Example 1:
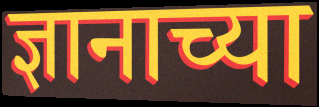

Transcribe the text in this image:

ज्ञानाच्या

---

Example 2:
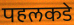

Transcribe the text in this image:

पहलकडे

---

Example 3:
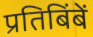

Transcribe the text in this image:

प्रतिबिंबें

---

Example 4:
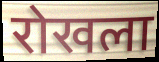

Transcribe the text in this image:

रोखला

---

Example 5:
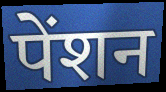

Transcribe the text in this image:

पेंशन